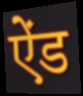
ऐंड